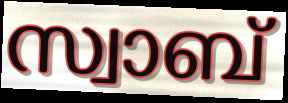
സ്വാബ്